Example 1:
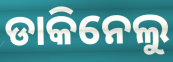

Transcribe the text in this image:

ଡାକିନେଲୁ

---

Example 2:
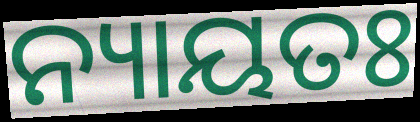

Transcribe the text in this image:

ନ୍ୟାୟତଃ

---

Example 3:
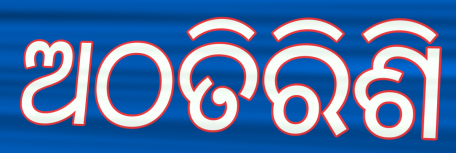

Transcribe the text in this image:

ଅଠତିରିଶି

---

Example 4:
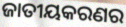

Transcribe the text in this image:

ଜାତୀୟକରଣର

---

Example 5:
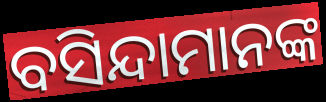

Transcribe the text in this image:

ବସିନ୍ଦାମାନଙ୍କ